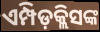
ଏମ୍ପିଡ଼କ୍ଲିସଙ୍କ